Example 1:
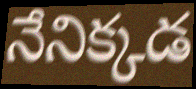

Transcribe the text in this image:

నేనిక్కడ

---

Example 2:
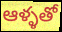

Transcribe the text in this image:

ఆళ్ళతో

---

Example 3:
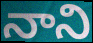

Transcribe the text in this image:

నాని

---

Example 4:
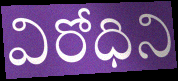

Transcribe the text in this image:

విరోధిని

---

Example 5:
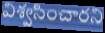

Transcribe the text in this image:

విశ్వసించారని